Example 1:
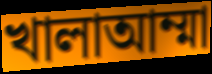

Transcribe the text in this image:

খালাআম্মা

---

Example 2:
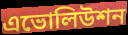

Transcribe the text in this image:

এভোলিউশন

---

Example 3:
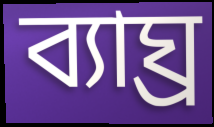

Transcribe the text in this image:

ব্যাঘ্র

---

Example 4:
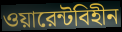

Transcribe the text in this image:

ওয়ারেন্টবিহীন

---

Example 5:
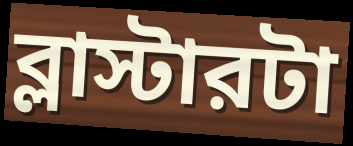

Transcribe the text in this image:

ব্লাস্টারটা